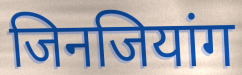
जिनजियांग